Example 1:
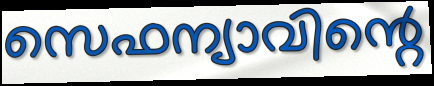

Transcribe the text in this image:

സെഫന്യാവിന്റെ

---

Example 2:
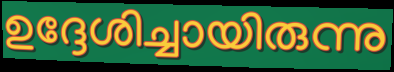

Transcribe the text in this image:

ഉദ്ദേശിച്ചായിരുന്നു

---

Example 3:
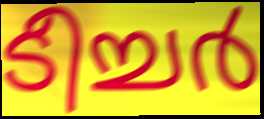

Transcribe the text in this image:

ടീച്ചർ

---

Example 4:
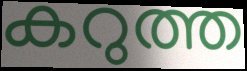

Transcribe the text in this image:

കറുത്ത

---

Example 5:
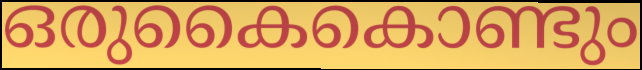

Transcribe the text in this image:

ഒരുകൈകൊണ്ടും